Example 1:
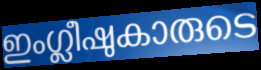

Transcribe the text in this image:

ഇംഗ്ലീഷുകാരുടെ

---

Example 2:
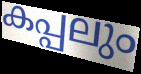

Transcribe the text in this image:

കപ്പലും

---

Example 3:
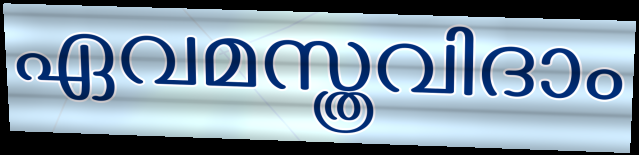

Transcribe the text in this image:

ഏവമസ്ത്രവിദാം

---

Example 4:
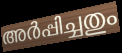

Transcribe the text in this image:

അർപ്പിച്ചതും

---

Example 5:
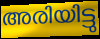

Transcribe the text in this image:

അരിയിട്ടു